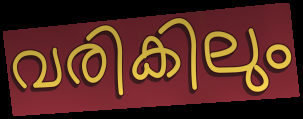
വരികിലും